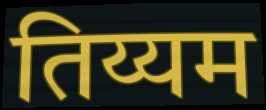
तिय्यम